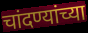
चांदण्यांच्या